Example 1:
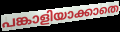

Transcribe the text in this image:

പങ്കാളിയാക്കാതെ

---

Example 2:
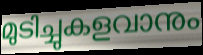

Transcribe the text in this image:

മുടിച്ചുകളവാനും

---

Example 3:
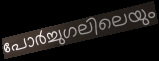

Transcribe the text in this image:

പോർച്ചുഗലിലെയും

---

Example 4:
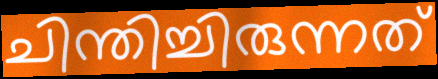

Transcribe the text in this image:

ചിന്തിച്ചിരുന്നത്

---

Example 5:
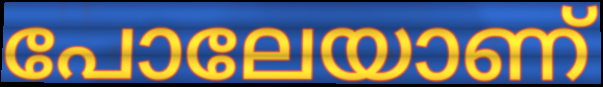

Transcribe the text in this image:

പോലേയാണ്